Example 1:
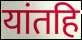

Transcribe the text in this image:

यांतहि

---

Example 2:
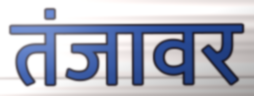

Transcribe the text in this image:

तंजावर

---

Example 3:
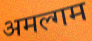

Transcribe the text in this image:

अमल्गम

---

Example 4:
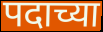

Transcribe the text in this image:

पदाच्या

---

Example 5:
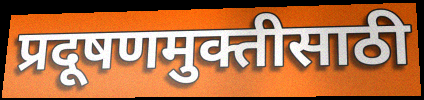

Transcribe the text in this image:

प्रदूषणमुक्तीसाठी